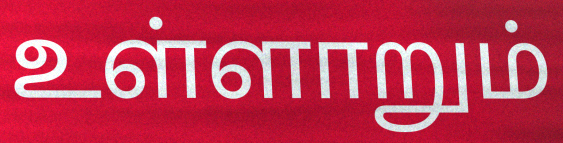
உள்ளாறும்